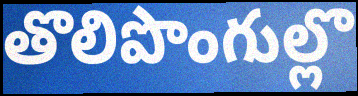
తొలిపొంగుల్లొ